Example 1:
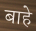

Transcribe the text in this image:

बाहे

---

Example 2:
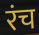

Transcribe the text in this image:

रंच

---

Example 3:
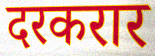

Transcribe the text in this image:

दरकरार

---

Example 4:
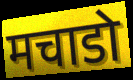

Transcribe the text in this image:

मचाडो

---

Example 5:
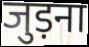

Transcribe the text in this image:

जुड़ना